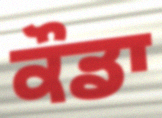
ਕੌਡਾ